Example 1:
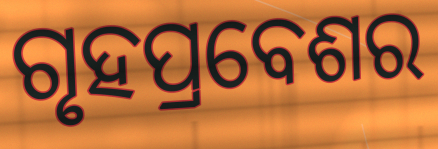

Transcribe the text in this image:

ଗୃହପ୍ରବେଶର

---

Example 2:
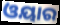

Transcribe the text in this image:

ଓୟାର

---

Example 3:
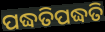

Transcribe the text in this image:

ପଦ୍ଧତିପଦ୍ଧତି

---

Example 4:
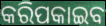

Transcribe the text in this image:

କରିପକାଇବ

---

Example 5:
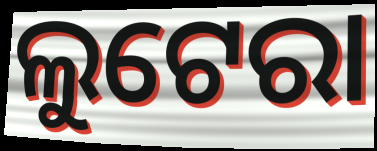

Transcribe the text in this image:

ଲୁଟେରା